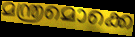
മന്ത്രമൊക്കെ